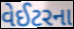
વેઈટરના